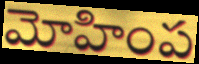
మోహింప